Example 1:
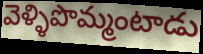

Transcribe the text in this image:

వెళ్ళిపొమ్మంటాడు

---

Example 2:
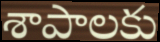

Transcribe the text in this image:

శాపాలకు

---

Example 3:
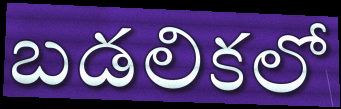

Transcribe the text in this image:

బడలికలో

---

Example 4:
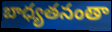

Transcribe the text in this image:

బాధ్యతనంతా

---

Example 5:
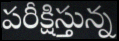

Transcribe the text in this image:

పరీక్షిస్తున్న